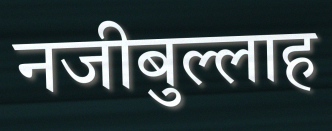
नजीबुल्लाह